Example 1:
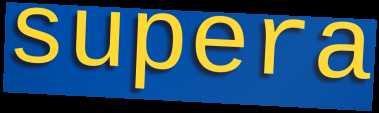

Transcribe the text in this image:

supera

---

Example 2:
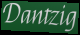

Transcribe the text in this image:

Dantzig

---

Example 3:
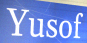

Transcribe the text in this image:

Yusof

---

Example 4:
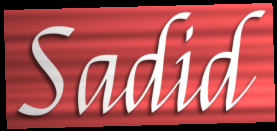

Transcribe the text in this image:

Sadid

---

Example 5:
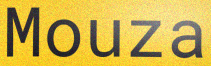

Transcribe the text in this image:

Mouza